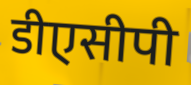
डीएसीपी